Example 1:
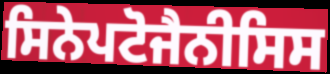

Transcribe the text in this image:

ਸਿਨੇਪਟੋਜੈਨੀਸਿਸ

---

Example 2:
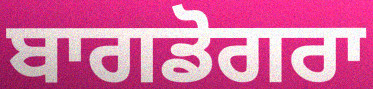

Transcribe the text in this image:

ਬਾਗਡੋਗਰਾ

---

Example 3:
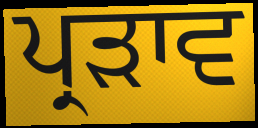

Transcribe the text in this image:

ਪ੍ਰੜਾਵ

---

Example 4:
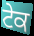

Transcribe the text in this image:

ਟੇਕ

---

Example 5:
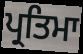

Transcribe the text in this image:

ਪ੍ਰਤਿਮਾ